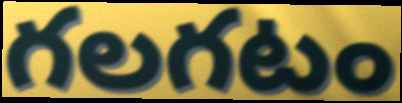
గలగటం